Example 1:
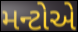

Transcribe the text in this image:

મન્ટોએ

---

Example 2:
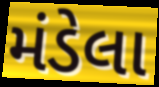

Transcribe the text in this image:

મંડેલા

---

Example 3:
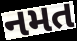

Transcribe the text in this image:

નમત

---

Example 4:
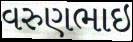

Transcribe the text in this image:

વરુણભાઇ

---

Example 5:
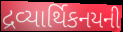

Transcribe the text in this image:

દ્રવ્યાર્થિકનયની